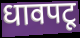
धावपटू